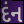
દંન